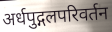
अर्धपुद्गलपरिवर्तन